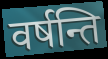
वर्षन्ति